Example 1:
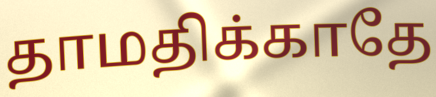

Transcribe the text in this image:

தாமதிக்காதே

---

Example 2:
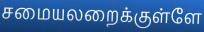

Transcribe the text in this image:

சமையலறைக்குள்ளே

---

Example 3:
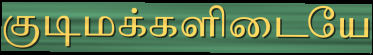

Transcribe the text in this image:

குடிமக்களிடையே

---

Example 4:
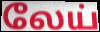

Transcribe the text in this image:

லேய்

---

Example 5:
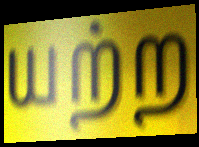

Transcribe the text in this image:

யற்ற